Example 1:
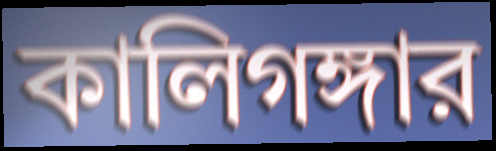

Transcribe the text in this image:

কালিগঙ্গার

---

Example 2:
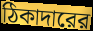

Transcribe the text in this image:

ঠিকাদারের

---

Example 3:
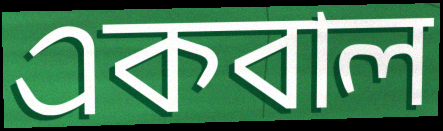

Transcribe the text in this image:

একবাল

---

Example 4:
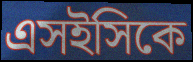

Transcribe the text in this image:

এসইসিকে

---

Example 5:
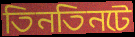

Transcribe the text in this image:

তিনতিনটে